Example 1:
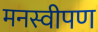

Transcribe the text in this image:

मनस्वीपण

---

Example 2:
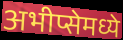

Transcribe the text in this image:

अभीप्सेमध्ये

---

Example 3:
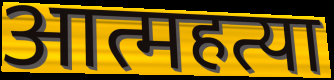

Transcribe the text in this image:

आत्महत्या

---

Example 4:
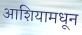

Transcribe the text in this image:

आशियामधून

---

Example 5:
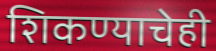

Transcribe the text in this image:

शिकण्याचेही